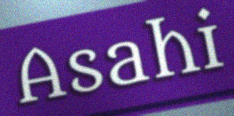
Asahi